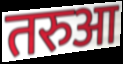
तरुआ